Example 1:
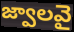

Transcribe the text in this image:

జ్వాలవై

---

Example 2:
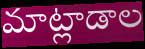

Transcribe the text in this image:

మాట్లాడాల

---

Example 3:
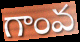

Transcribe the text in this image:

గాంవ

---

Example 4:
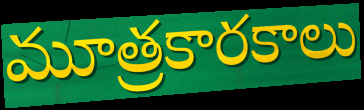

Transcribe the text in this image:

మూత్రకారకాలు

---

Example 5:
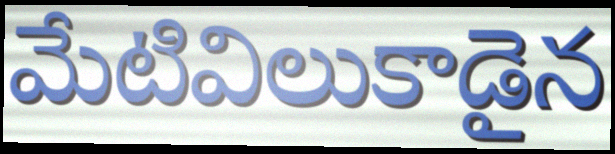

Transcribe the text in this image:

మేటివిలుకాడైన